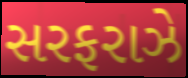
સરફરાઝે